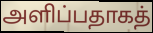
அளிப்பதாகத்